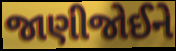
જાણીજોઈને